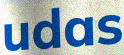
udas